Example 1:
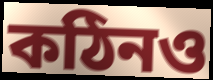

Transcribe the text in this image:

কঠিনও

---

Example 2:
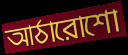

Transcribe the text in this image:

আঠারোশো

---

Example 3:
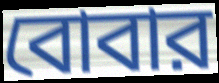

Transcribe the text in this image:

বোবার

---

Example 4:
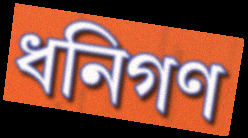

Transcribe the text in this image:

ধনিগণ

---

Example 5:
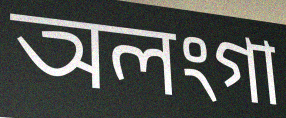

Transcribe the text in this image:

অলংগা